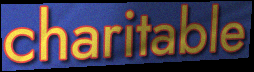
charitable